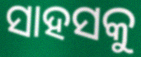
ସାହସକୁ